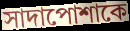
সাদাপোশাকে